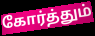
கோர்த்தும்